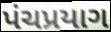
પંચપ્રયાગ